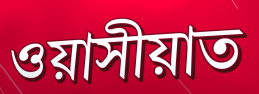
ওয়াসীয়াত